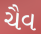
ચૈવ